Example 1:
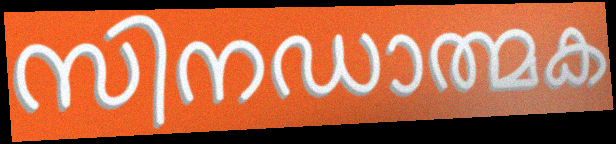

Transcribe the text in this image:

സിനഡാത്മക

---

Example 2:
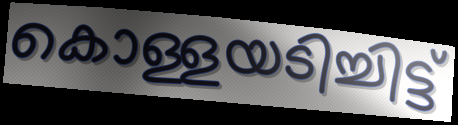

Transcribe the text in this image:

കൊള്ളയടിച്ചിട്ട്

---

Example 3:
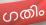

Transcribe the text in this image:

ഗതിം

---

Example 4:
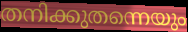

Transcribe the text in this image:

തനിക്കുതന്നെയും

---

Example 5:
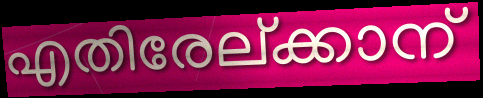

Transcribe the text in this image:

എതിരേല്ക്കാന്